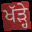
ਖੱੜ੍ਹੇ